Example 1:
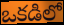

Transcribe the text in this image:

ఒకడిలో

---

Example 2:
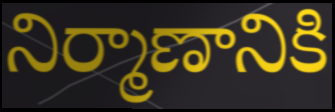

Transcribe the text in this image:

నిర్మాణానికి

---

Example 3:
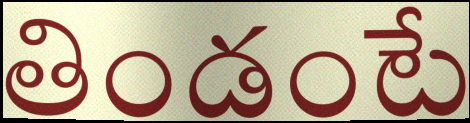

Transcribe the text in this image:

తిండంటే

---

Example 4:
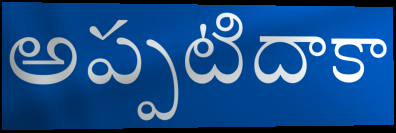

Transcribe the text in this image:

అప్పటిదాకా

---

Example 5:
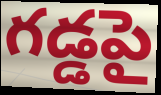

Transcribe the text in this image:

గడ్డపై